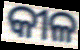
କୀଳ